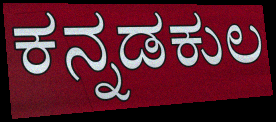
ಕನ್ನಡಕುಲ